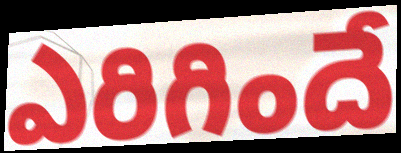
ఎరిగిందే